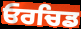
ਓਰਚਿਡ